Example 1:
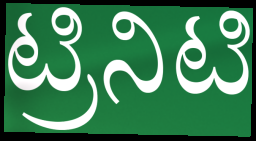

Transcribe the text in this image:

ಟ್ರಿನಿಟಿ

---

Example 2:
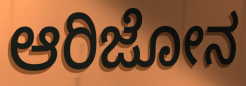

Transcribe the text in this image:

ಆರಿಜೋನ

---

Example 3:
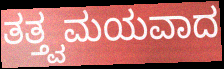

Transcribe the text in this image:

ತತ್ತ್ವಮಯವಾದ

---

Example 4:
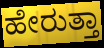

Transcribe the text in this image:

ಹೇರುತ್ತಾ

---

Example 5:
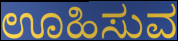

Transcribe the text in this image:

ಊಹಿಸುವ